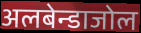
अलबेन्डाजोल